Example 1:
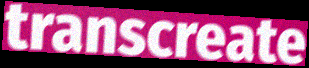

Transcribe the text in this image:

transcreate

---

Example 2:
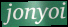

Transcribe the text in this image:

jonyoi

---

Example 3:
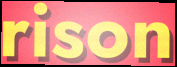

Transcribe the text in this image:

rison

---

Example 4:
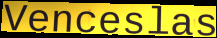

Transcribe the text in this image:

Venceslas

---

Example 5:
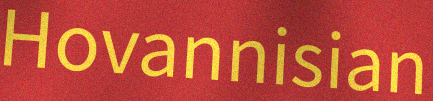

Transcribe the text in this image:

Hovannisian